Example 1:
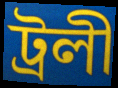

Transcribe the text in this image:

ট্ৰলী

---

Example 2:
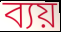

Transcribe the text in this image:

ব্যয়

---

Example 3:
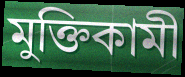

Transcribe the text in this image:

মুক্তিকামী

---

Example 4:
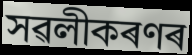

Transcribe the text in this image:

সৱলীকৰণৰ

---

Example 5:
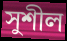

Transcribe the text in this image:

সুশীল